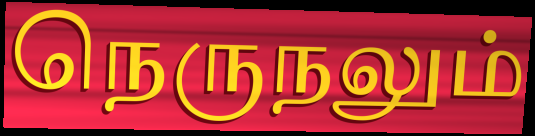
நெருநலும்